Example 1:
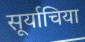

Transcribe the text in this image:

सूर्याचिया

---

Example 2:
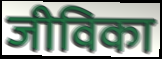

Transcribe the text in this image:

जीविका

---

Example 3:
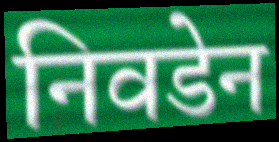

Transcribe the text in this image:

निवडेन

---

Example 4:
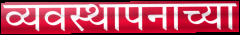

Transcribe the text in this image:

व्यवस्थापनाच्या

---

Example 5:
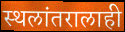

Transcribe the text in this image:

स्थलांतरालाही